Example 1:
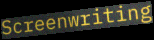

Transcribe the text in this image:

Screenwriting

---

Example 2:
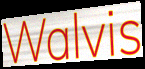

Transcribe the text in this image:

Walvis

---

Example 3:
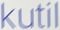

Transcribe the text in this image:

kutil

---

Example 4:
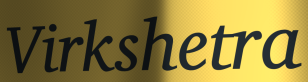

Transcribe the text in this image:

Virkshetra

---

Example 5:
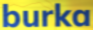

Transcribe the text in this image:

burka